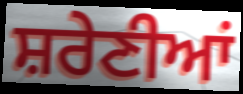
ਸ਼ਰੇਣੀਆਂ